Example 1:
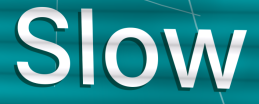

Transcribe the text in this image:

Slow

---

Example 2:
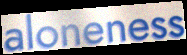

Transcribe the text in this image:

aloneness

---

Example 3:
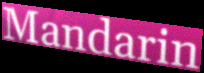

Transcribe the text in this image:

Mandarin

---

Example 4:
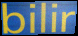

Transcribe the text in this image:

bilir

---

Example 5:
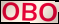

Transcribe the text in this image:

OBO